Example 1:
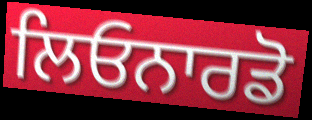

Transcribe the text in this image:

ਲਿਓਨਾਰਡੋ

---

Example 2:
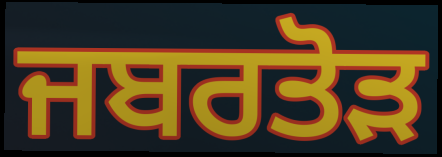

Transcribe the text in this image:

ਜਬਰਤੋੜ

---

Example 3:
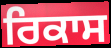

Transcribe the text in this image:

ਰਿਕਾਸ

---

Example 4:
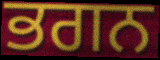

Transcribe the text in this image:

ਭਗਨ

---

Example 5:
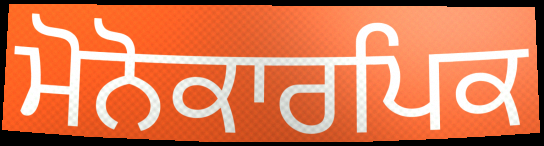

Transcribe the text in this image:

ਮੋਨੋਕਾਰਪਿਕ